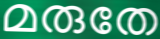
മരുതേ